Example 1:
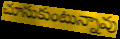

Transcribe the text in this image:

చూసుకుంటున్నావు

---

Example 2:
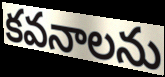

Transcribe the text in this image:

కవనాలను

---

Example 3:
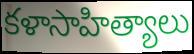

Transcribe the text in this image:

కళాసాహిత్యాలు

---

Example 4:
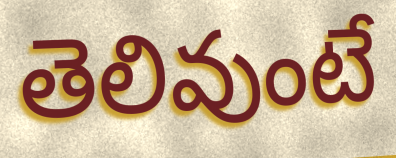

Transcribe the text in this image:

తెలివుంటే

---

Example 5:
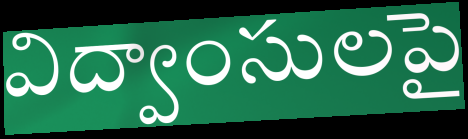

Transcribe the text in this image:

విద్వాంసులపై